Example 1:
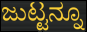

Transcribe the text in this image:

ಜುಟ್ಟನ್ನೂ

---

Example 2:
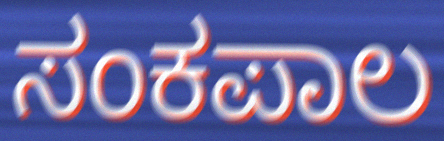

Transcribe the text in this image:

ಸಂಕಪಾಲ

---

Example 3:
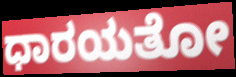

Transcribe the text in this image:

ಧಾರಯತೋ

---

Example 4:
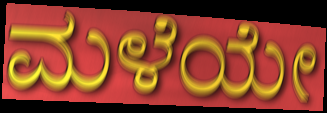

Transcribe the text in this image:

ಮಳೆಯೇ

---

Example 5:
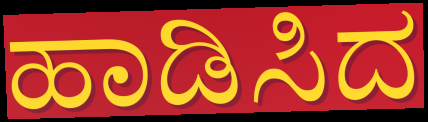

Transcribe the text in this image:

ಹಾಡಿಸಿದ